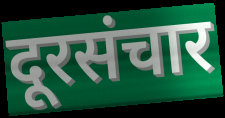
दूरसंचार